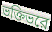
ভক্তিভরে